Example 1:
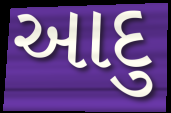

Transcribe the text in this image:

આદુ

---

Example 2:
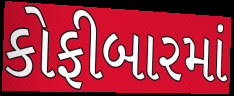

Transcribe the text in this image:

કોફીબારમાં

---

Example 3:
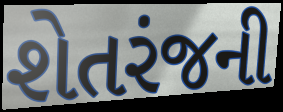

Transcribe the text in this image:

શેતરંજની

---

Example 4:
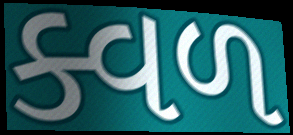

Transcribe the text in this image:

ક્વળ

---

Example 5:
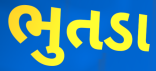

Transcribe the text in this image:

ભુતડા